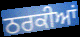
ਠਰਕੀਆਂ